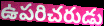
ఉపరిచరుడు